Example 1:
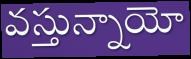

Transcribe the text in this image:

వస్తున్నాయో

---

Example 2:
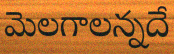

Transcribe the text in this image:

మెలగాలన్నదే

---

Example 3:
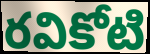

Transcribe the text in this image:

రవికోటి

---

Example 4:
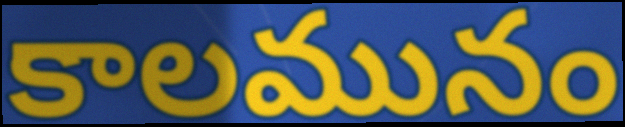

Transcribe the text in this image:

కాలమునం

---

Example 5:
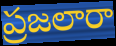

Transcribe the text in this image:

ప్రజలారా